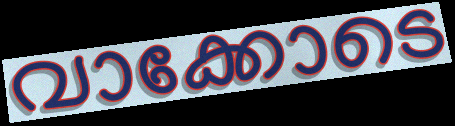
വാക്കോടെ